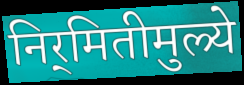
निर्मितीमुल्ये